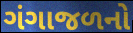
ગંગાજળનો